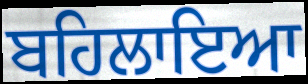
ਬਹਿਲਾਇਆ